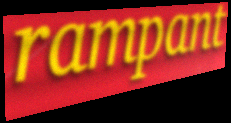
rampant